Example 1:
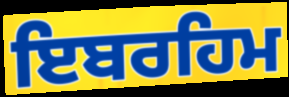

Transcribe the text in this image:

ਇਬਰਹਿਮ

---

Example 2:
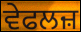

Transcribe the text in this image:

ਵੇਫਲਜ਼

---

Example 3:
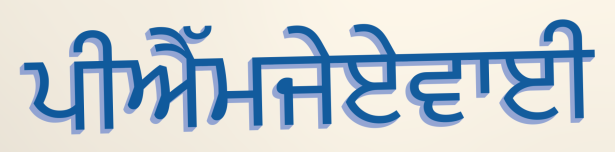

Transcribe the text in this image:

ਪੀਐੱਮਜੇਏਵਾਈ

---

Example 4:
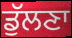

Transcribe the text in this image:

ਡੁੱਲਣਾ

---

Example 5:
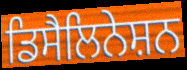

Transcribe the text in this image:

ਡਿਸੈਲਿਨੇਸ਼ਨ